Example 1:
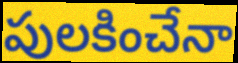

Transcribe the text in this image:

పులకించేనా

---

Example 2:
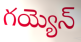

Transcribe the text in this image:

గయ్యెన్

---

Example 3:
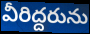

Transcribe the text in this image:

వీరిద్దరును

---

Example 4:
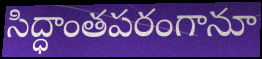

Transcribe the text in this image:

సిద్ధాంతపరంగానూ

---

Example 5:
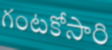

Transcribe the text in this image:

గంటకోసారి